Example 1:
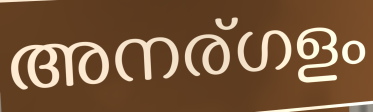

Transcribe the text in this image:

അനര്ഗളം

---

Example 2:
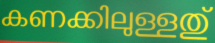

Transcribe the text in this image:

കണക്കിലുള്ളതു്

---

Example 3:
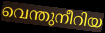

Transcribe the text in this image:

വെന്തുനീറിയ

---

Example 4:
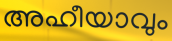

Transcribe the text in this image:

അഹീയാവും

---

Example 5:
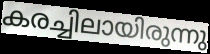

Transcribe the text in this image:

കരച്ചിലായിരുന്നു